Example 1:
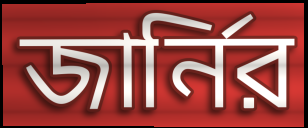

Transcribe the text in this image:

জার্নির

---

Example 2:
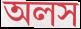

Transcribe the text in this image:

অলস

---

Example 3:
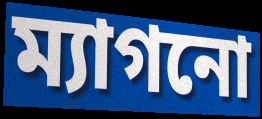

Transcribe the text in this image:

ম্যাগনো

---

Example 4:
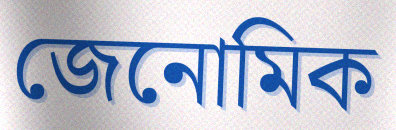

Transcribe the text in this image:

জেনোমিক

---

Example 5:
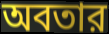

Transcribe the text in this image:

অবতার